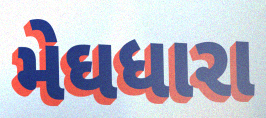
મેઘધારા